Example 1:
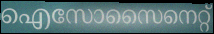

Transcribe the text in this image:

ഐസോസൈനെറ്റ്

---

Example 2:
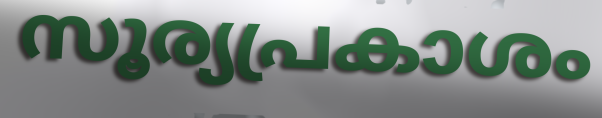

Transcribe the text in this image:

സൂര്യപ്രകാശം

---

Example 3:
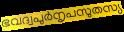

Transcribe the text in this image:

ഭവദ്വപുർനൃപസുതസ്യ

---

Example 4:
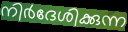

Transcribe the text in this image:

നിർദേശിക്കുന്ന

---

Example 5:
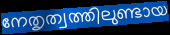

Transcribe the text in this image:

നേതൃത്വത്തിലുണ്ടായ